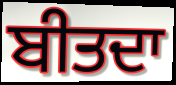
ਬੀਤਦਾ